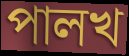
পালখ